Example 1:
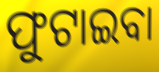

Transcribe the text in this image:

ଫୁଟାଇବା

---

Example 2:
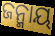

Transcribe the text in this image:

ଜନ୍ମାୟ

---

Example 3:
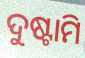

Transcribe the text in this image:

ଦୁଷ୍ଟାମି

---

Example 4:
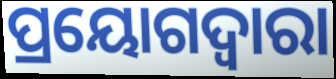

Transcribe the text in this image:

ପ୍ରୟୋଗଦ୍ଵାରା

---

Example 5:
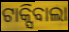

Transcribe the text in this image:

ଟାକ୍ସିବାଲା